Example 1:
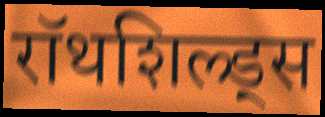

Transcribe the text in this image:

रॉथशिल्ड्स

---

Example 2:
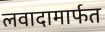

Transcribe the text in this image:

लवादामार्फत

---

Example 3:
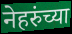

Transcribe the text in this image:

नेहरुंच्या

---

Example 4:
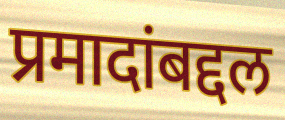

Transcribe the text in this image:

प्रमादांबद्दल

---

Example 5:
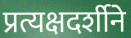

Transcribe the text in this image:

प्रत्यक्षदर्शीने